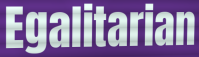
Egalitarian